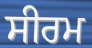
ਸੀਰਮ